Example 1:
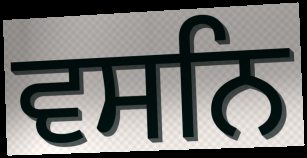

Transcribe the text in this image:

ਵਸਨਿ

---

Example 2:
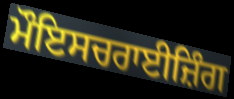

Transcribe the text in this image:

ਮੌਇਸਚਰਾਈਜ਼ਿੰਗ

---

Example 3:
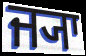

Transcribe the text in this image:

ਜ੍ਯਾ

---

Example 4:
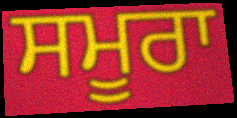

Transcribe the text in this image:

ਸਮੂਰਾ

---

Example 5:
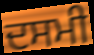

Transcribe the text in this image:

ਦਸਮੀ